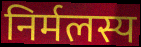
निर्मलस्य